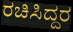
ರಚಿಸಿದ್ದರ